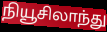
நியூசிலாந்து